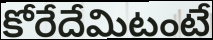
కోరేదేమిటంటే